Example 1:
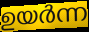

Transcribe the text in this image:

ഉയർന്ന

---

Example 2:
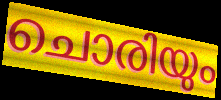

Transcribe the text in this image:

ചൊരിയും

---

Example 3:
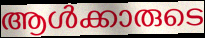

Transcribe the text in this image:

ആൾക്കാരുടെ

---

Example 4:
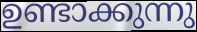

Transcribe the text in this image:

ഉണ്ടാക്കുന്നു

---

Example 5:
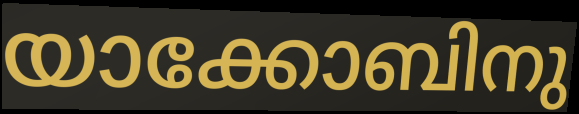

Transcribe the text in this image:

യാക്കോബിനു